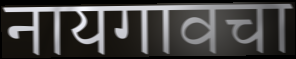
नायगावचा